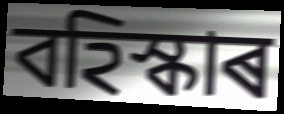
বহিস্কাৰ